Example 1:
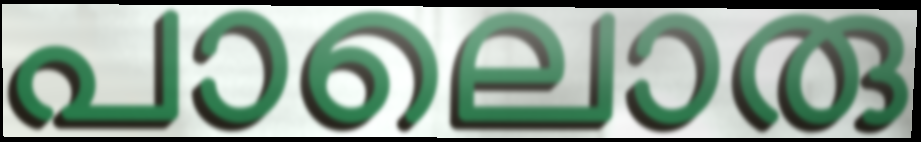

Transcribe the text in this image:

പാലൊരു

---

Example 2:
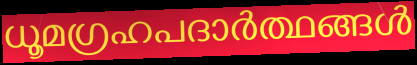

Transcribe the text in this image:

ധൂമഗ്രഹപദാർത്ഥങ്ങൾ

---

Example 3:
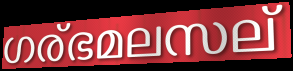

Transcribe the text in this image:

ഗര്ഭമലസല്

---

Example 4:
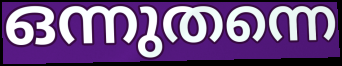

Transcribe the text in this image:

ഒന്നുതന്നെ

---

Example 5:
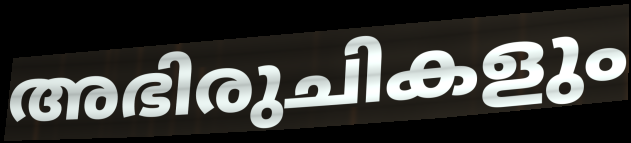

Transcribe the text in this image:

അഭിരുചികളും